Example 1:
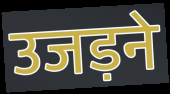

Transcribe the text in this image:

उजड़ने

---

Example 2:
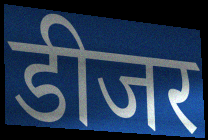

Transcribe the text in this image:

डीजर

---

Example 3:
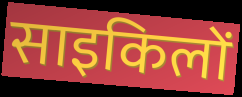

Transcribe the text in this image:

साइकिलों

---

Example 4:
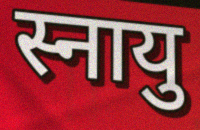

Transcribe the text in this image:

स्नायु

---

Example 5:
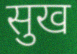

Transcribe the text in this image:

सुख